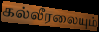
கல்லீரலையும்